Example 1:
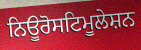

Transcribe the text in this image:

ਨਿਊਰੋਸਟਿਮੂਲੇਸ਼ਨ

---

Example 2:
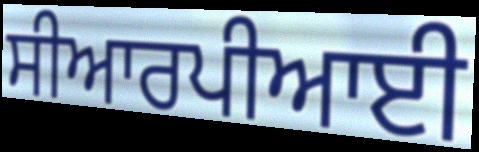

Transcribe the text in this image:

ਸੀਆਰਪੀਆਈ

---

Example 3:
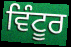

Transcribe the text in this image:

ਵਿੰਟੂਰ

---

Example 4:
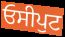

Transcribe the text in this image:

ਓਸੀਪੁਟ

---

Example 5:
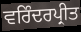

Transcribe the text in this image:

ਵਰਿੰਦਰਪ੍ਰੀਤ